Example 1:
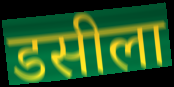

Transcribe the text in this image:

डसीला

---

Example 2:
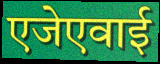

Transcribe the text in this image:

एजेएवाई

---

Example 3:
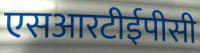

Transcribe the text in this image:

एसआरटीईपीसी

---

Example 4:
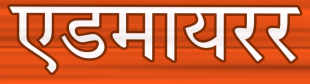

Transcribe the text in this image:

एडमायरर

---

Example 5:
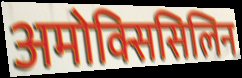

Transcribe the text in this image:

अमोक्सिसिलिन